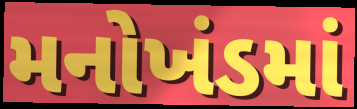
મનોખંડમાં